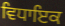
ਵਿਧਾਇਕ